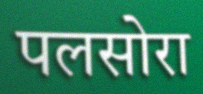
पलसोरा